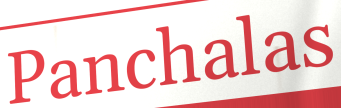
Panchalas